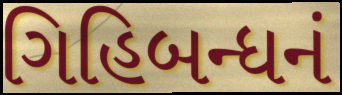
ગિહિબન્ધનં